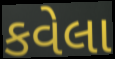
કવેલા